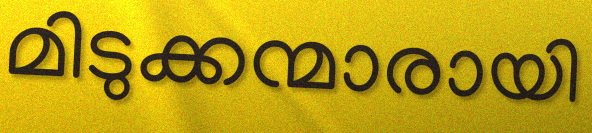
മിടുക്കന്മാരായി